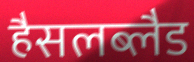
हैसलब्लैड